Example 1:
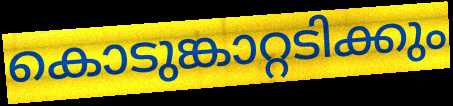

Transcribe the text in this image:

കൊടുങ്കാറ്റടിക്കും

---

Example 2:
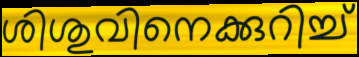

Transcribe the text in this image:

ശിശുവിനെക്കുറിച്ച്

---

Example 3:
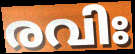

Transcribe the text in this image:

രവിഃ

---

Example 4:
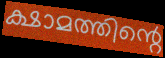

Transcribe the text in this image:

ക്ഷാമത്തിന്റെ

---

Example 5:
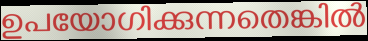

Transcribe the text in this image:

ഉപയോഗിക്കുന്നതെങ്കിൽ